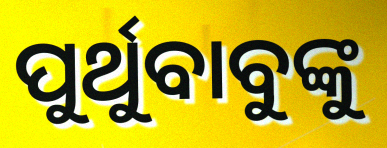
ପୁର୍ଥୁବାବୁଙ୍କୁ